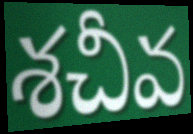
శచీవ